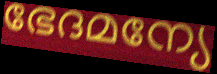
ഭേദമന്യേ